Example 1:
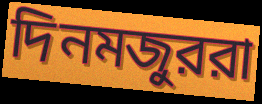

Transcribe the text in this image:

দিনমজুররা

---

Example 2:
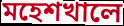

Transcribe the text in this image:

মহেশখালে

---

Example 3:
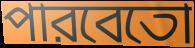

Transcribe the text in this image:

পারবেতো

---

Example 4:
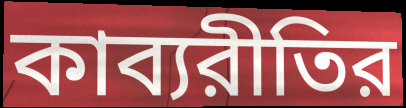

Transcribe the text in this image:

কাব্যরীতির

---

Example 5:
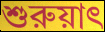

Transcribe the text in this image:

শুরুয়াৎ